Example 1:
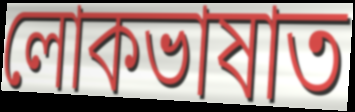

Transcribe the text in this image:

লোকভাষাত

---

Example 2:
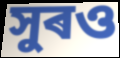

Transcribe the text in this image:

সুৰও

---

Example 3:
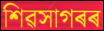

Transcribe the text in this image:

শিৱসাগৰৰ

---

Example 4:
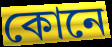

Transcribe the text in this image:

কোনে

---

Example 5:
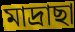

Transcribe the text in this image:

মাদ্ৰাছা